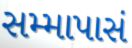
સમ્માપાસં